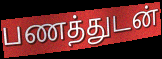
பணத்துடன்